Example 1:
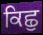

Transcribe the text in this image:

ਕਿਛੁ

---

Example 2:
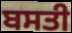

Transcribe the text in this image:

ਬਸਤੀ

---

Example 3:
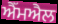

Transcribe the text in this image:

ਐੱਮਐਲ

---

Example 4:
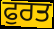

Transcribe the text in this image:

ਫੁਰਤ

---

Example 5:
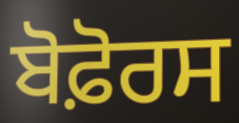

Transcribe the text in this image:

ਬੋਫ਼ੋਰਸ